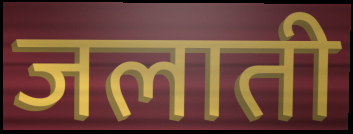
जलाती